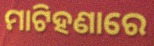
ମାଟିହଣାରେ